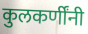
कुलकर्णींनी